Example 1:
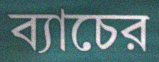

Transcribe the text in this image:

ব্যাচের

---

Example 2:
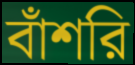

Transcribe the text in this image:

বাঁশরি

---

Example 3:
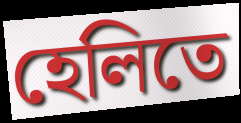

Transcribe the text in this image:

হেলিতে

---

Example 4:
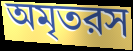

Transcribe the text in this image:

অমৃতরস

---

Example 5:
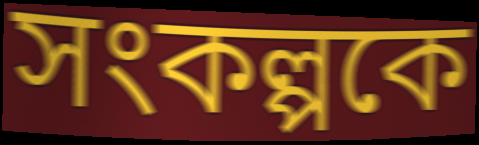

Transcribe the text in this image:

সংকল্পকে